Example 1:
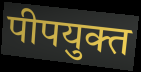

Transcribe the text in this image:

पीपयुक्त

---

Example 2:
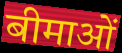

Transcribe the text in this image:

बीमाओं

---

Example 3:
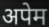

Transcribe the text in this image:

अपेम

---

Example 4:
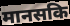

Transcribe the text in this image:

मानसकि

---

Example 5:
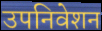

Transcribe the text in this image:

उपनिवेशन